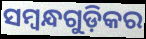
ସମ୍ବନ୍ଧଗୁଡ଼ିକର